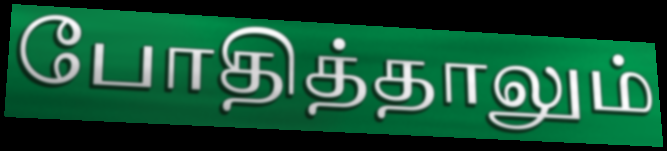
போதித்தாலும்